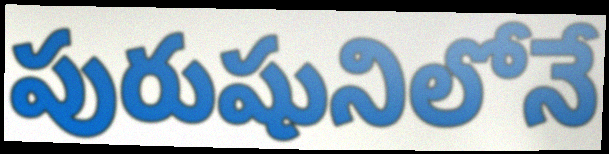
పురుషునిలోనే